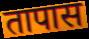
तापास